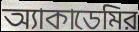
অ্যাকাডেমির